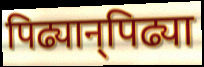
पिढ्यान्‌पिढ्या